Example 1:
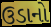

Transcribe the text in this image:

ઉડાનો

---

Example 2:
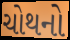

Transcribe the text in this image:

ચોથનો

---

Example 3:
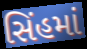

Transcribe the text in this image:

સિંહમાં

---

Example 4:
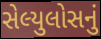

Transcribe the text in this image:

સેલ્યુલોસનું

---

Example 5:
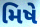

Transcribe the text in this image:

મિષે